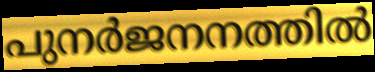
പുനർജനനത്തിൽ